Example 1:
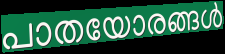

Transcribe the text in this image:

പാതയോരങ്ങൾ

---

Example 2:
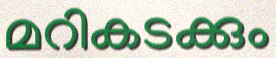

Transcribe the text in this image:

മറികടക്കും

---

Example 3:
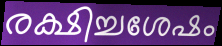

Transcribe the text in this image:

രക്ഷിച്ചശേഷം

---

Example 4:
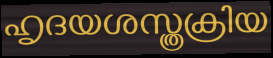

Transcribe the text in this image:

ഹൃദയശസ്ത്രക്രിയ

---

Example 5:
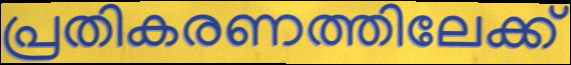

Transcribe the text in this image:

പ്രതികരണത്തിലേക്ക്